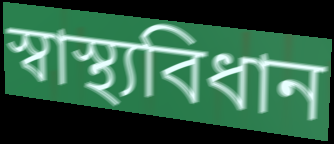
স্বাস্থ্যবিধান